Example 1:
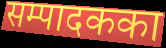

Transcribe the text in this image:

सम्पादकका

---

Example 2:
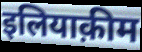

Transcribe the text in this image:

इलियाक़ीम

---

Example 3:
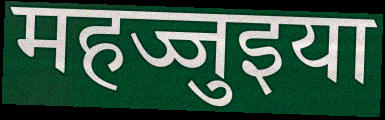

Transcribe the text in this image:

महज्जुइया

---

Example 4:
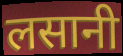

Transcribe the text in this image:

लसानी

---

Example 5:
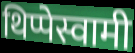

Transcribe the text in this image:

थिप्पेस्वामी